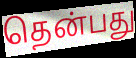
தென்பது